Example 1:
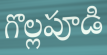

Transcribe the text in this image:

గొల్లపూడి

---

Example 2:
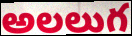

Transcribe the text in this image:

అలలుగ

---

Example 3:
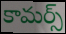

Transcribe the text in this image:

కామర్స్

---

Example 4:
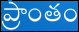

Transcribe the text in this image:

ప్రాంతం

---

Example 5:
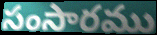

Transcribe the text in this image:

సంసారము